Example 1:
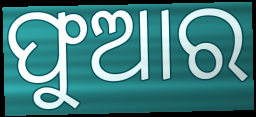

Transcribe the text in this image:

ଫୁଆର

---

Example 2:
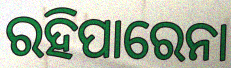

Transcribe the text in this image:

ରହିପାରେନା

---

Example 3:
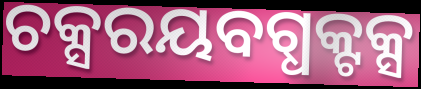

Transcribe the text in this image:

ଚକ୍ସରୟବଗ୍ଧକ୍ଟକ୍ସ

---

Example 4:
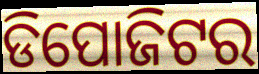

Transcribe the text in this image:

ଡିପୋଜିଟର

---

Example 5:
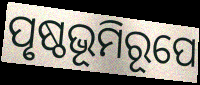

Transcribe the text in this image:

ପୃଷ୍ଠଭୂମିରୂପେ